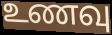
உணவு